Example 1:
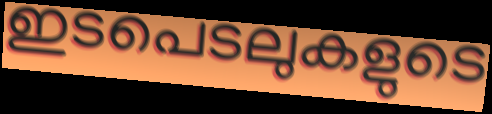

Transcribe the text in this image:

ഇടപെടലുകളുടെ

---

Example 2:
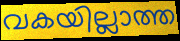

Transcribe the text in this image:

വകയില്ലാത്ത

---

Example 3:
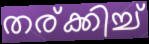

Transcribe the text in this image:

തര്ക്കിച്ച്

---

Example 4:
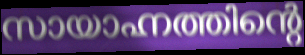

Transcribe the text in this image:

സായാഹ്നത്തിന്റെ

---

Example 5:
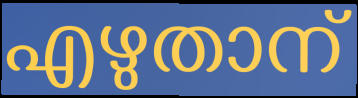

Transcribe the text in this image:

എഴുതാന്